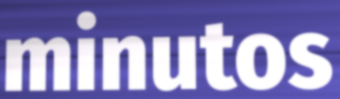
minutos